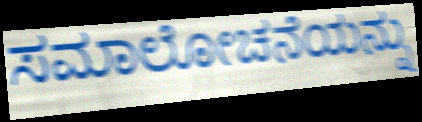
ಸಮಾಲೋಚನೆಯನ್ನು